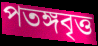
পতঙ্গবৃত্ত